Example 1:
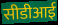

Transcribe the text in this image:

सीडीआई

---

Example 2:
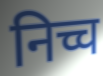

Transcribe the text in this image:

निच्च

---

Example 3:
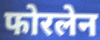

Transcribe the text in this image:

फोरलेन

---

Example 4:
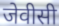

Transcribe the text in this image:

जेवीसी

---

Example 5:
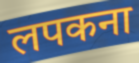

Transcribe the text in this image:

लपकना